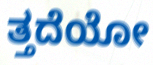
ತ್ತದೆಯೋ